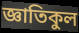
জ্ঞাতিকুল